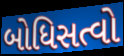
બોધિસત્વો